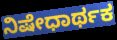
ನಿಷೇಧಾರ್ಥಕ